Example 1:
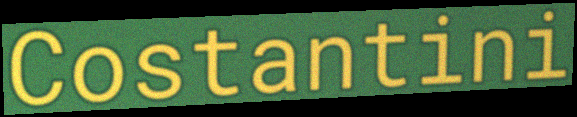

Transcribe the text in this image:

Costantini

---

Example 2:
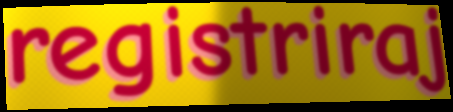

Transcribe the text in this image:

registriraj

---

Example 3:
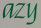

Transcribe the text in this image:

azy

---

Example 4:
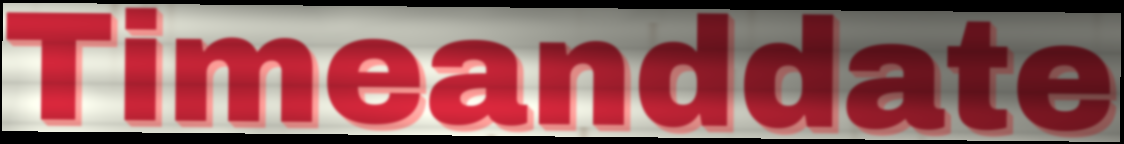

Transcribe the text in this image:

Timeanddate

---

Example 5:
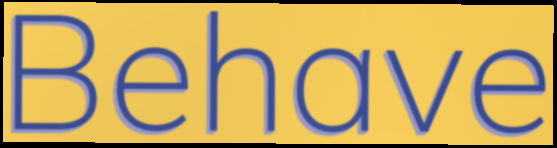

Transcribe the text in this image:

Behave